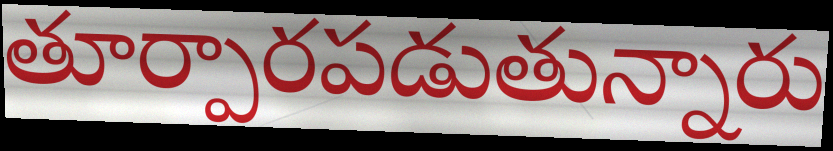
తూర్పారపడుతున్నారు